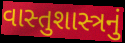
વાસ્તુશાસ્ત્રનું